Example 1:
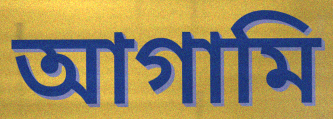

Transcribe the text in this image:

আগামি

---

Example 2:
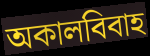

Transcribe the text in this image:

অকালবিবাহ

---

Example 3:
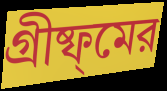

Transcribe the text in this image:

গ্রীষ্ফ্মের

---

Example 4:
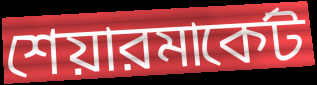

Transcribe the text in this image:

শেয়ারমার্কেট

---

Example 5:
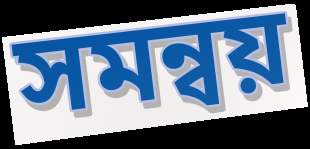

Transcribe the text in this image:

সমন্বয়